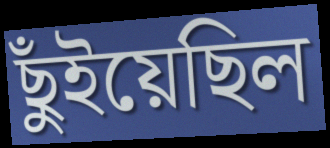
ছুঁইয়েছিল